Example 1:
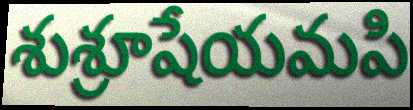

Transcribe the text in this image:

శుశ్రూషేయమపి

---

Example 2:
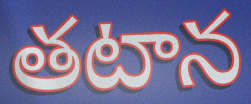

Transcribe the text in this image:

తటాన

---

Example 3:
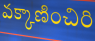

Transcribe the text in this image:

వక్కాణించిరి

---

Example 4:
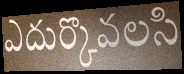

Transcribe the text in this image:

ఎదుర్కొవలసి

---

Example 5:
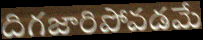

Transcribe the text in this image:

దిగజారిపోవడమే